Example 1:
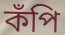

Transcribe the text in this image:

কঁপি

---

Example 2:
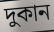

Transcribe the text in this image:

দুকান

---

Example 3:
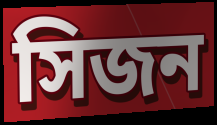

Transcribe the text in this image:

সিজন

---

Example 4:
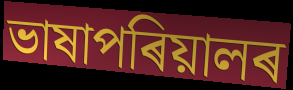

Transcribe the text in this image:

ভাষাপৰিয়ালৰ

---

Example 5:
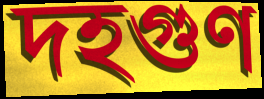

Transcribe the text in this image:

দহগুণ